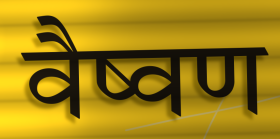
वैष्वण